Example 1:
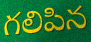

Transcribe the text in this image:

గలిపిన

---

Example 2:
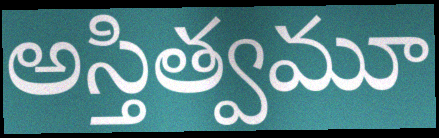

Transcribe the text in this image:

అస్తిత్వమూ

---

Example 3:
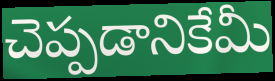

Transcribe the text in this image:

చెప్పడానికేమీ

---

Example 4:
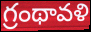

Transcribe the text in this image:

గ్రంథావళి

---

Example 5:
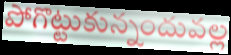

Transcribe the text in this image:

పోగొట్టుకున్నందువల్ల